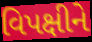
વિપક્ષીને